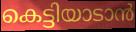
കെട്ടിയാടാൻ